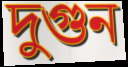
দুগুন